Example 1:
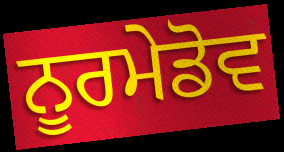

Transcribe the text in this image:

ਨੂਰਮੇਡੋਵ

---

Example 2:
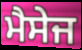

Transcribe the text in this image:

ਮੈਸੇਜ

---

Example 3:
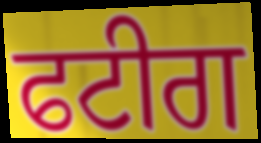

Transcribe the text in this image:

ਫਟੀਗ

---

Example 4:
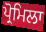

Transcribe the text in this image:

ਪ੍ਰੋਮਿਲਾ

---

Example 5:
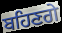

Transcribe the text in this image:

ਬਹਿਣਗੇ